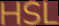
HSL